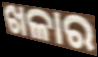
ଖଳାର